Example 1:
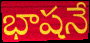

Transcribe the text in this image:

భాషనే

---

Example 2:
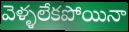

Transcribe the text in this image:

వెళ్ళలేకపోయినా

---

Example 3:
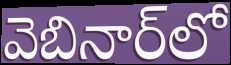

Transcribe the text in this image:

వెబినార్‌లో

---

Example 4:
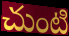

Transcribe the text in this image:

చుంటి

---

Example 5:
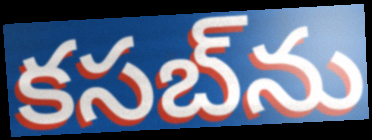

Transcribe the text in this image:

కసబ్‌ను